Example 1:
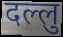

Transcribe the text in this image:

दल्लु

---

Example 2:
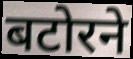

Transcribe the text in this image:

बटोरने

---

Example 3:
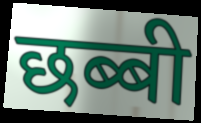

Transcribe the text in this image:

छब्बी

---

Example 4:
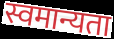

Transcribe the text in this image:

स्वमान्यता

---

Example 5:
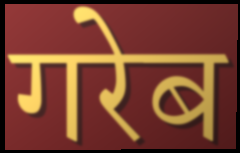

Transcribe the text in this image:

गरेब